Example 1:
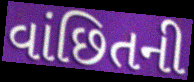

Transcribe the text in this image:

વાંછિતની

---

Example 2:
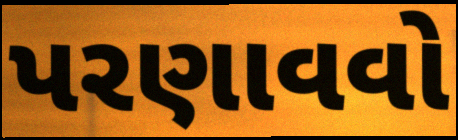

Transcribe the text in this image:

પરણાવવો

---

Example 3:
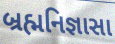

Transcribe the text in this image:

બ્રહ્મનિજ્ઞાસા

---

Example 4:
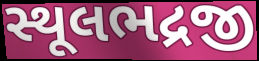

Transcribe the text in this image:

સ્થૂલભદ્રજી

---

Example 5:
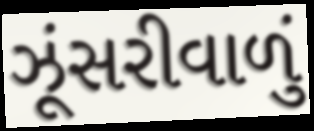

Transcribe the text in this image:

ઝૂંસરીવાળું